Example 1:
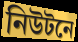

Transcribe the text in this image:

নিউটনে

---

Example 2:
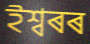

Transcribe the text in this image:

ইশ্বৰৰ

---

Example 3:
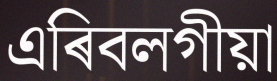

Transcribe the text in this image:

এৰিবলগীয়া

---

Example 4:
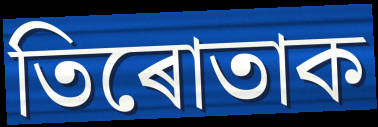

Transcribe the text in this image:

তিৰোতাক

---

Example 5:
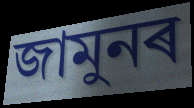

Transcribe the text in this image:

জামুনৰ